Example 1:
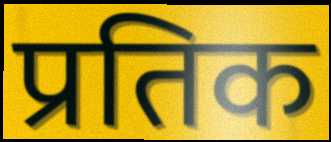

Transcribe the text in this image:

प्रतिक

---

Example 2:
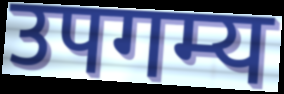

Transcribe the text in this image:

उपगम्य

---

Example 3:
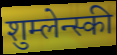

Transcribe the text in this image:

शुम्लेन्स्की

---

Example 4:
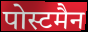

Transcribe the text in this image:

पोस्टमैन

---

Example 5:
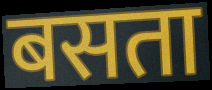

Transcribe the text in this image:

बसता